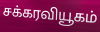
சக்கரவியூகம்